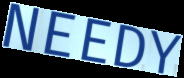
NEEDY